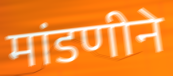
मांडणीने